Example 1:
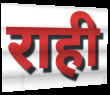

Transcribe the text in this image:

राही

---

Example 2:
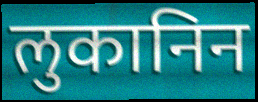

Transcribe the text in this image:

लुकानिन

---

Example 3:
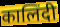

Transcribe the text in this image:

कालिंदी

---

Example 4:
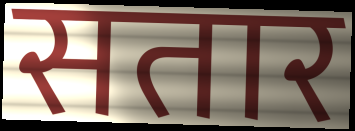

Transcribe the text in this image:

सतार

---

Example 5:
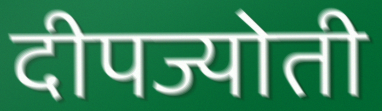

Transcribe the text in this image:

दीपज्योती